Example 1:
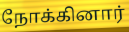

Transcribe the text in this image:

நோக்கினார்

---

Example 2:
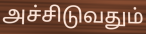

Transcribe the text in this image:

அச்சிடுவதும்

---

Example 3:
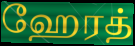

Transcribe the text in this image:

ஹேரத்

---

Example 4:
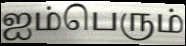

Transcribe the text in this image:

ஐம்பெரும்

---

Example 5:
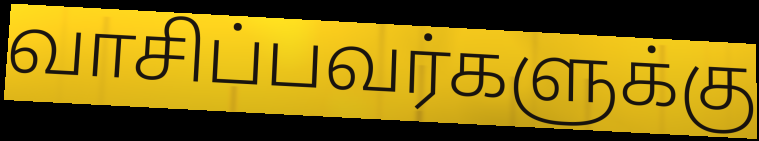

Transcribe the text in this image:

வாசிப்பவர்களுக்கு